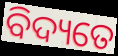
ବିଦ୍ୟତେ